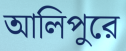
আলিপুরে